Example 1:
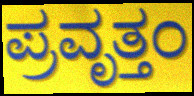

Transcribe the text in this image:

ಪ್ರವೃತ್ತಂ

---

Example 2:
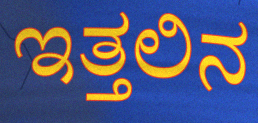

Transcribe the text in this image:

ಇತ್ತಲಿನ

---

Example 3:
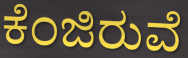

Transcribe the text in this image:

ಕೆಂಜಿರುವೆ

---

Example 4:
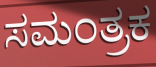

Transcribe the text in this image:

ಸಮಂತ್ರಕ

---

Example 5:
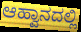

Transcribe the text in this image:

ಆಹ್ವಾನದಲ್ಲಿ